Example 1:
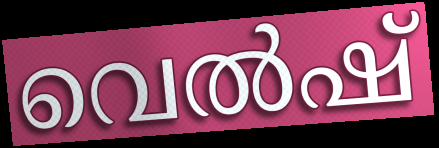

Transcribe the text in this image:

വെൽഷ്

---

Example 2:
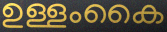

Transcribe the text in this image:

ഉള്ളംകൈ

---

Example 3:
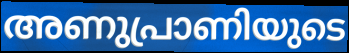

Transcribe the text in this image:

അണുപ്രാണിയുടെ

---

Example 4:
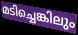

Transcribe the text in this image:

മടിച്ചെങ്കിലും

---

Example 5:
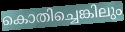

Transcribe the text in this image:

കൊതിച്ചെങ്കിലും